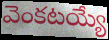
వెంకటయ్యే